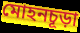
মোহনচূড়া